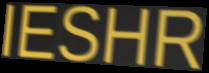
IESHR